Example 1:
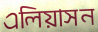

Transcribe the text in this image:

এলিয়াসন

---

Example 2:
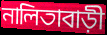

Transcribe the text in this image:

নালিতাবাড়ী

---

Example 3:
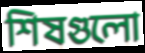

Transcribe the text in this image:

শিষগুলো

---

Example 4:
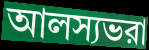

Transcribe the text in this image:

আলস্যভরা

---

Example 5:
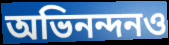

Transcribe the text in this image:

অভিনন্দনও